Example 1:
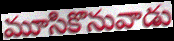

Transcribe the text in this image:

మూసికొనువాడు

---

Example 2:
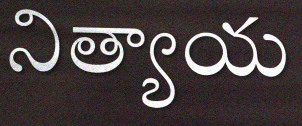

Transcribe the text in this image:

నిత్యాయ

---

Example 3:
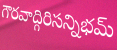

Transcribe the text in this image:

గౌరవాద్గిరిసన్నిభమ్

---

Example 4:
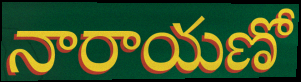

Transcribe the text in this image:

నారాయణో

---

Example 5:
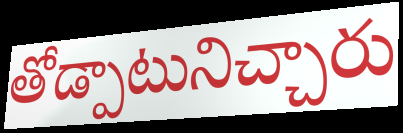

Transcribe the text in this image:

తోడ్పాటునిచ్చారు